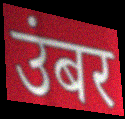
उंबर